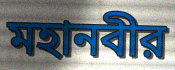
মহানবীর